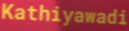
Kathiyawadi